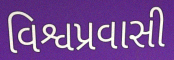
વિશ્વપ્રવાસી